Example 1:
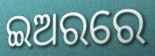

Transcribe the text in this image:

ଇଅରରେ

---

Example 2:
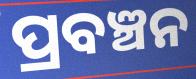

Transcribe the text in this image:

ପ୍ରବଞ୍ଚନ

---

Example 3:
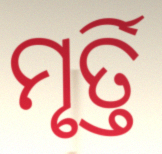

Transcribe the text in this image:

ମୃର୍ତ୍ତି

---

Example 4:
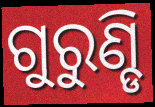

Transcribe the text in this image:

ଗୁରୁଣ୍ଡି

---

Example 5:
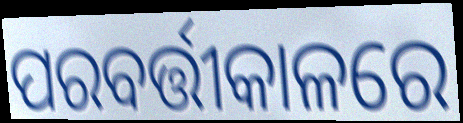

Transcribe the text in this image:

ପରବର୍ତ୍ତୀକାଳରେ